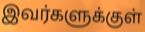
இவர்களுக்குள்